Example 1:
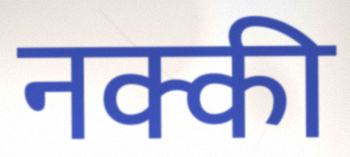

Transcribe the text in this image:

नक्की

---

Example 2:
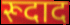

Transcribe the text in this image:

रूदाद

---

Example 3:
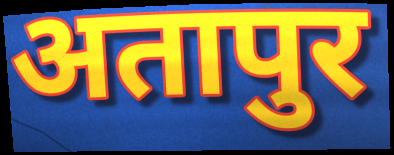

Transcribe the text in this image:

अतापुर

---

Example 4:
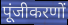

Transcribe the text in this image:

पूंजीकरणों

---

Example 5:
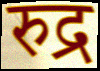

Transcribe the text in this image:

रुद्र